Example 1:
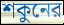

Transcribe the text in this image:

শকুনের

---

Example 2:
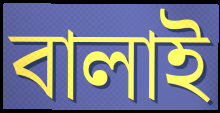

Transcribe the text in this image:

বালাই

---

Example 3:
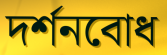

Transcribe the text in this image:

দর্শনবোধ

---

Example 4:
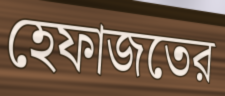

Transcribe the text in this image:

হেফাজতের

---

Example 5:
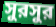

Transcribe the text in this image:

সুরসুর